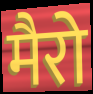
मैरो